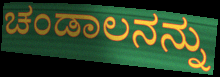
ಚಂಡಾಲನನ್ನು